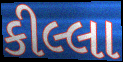
કીલ્લા